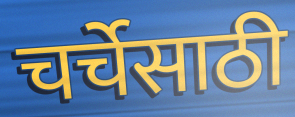
चर्चेसाठी